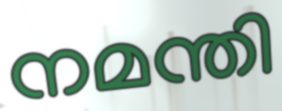
നമന്തി